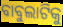
ବାବୁଲାଟିକୁ